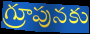
గ్రూపునకు